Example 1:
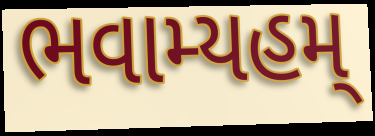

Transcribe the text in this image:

ભવામ્યહમ્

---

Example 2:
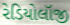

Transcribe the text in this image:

રેડિયોલૉજી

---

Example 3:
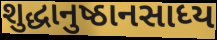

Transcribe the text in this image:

શુદ્ધાનુષ્ઠાનસાધ્ય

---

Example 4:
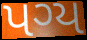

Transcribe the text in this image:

પગ્ય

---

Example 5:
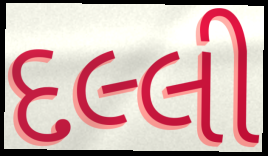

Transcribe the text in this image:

દલ્લી